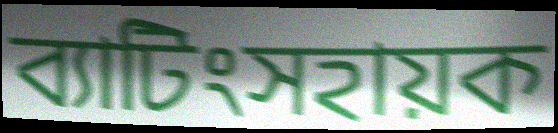
ব্যাটিংসহায়ক